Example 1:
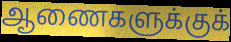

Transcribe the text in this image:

ஆணைகளுக்குக்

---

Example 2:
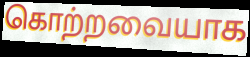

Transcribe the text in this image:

கொற்றவையாக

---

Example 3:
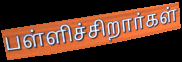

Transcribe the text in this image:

பள்ளிச்சிறார்கள்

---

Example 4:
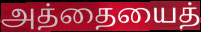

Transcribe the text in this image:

அத்தையைத்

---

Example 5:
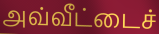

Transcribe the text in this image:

அவ்வீட்டைச்